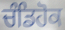
ਚੰਡਿਹੋਕ